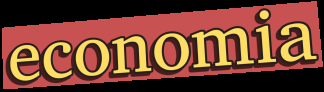
economia